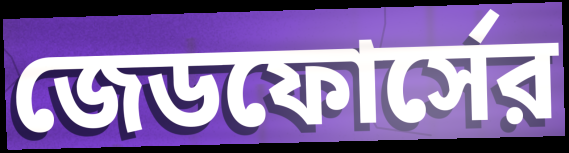
জেডফোর্সের